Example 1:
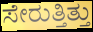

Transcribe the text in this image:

ಸೇರುತ್ತಿತ್ತು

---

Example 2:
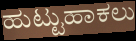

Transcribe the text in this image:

ಹುಟ್ಟುಹಾಕಲು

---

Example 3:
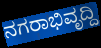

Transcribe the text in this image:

ನಗರಾಭಿವೃದ್ದಿ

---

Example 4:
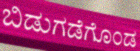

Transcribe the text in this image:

ಬಿಡುಗಡೆಗೊಂಡ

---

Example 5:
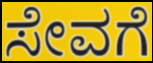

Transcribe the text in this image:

ಸೇವಗೆ